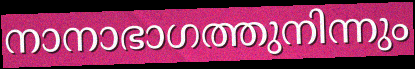
നാനാഭാഗത്തുനിന്നും